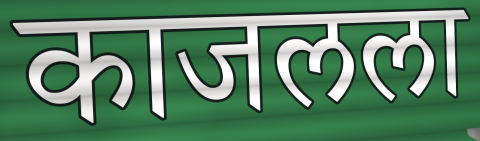
काजलला